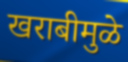
खराबीमुळे